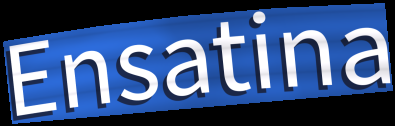
Ensatina